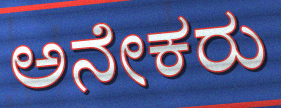
ಅನೇಕರು